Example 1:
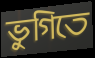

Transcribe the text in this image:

ভুগিতে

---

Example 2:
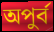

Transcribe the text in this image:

অপুর্ব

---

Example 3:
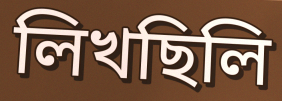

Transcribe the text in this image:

লিখছিলি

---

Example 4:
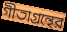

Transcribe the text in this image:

গীতাগ্রন্থের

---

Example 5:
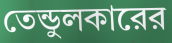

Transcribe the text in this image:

তেন্ডুলকারের